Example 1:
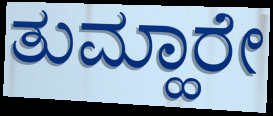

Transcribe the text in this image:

ತುಮ್ಹಾರೇ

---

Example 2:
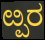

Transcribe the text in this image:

ೞ್ಪರ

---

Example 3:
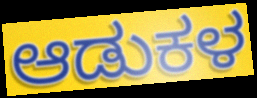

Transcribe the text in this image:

ಆಡುಕಳ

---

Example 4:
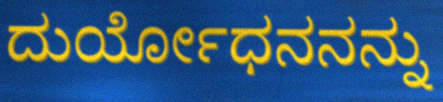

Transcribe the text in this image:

ದುರ್ಯೋಧನನನ್ನು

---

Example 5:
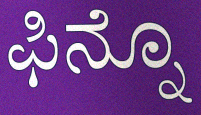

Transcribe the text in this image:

ಫಿನ್ನೊ